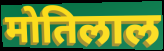
मोतिलाल